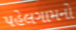
પહેલગામનો